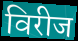
विरीज